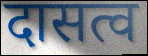
दासत्व